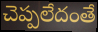
చెప్పలేదంతే